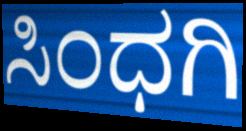
ಸಿಂಧಗಿ